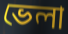
ভেলা